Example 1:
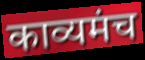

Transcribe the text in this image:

काव्यमंच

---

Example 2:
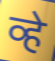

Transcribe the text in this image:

व्हे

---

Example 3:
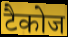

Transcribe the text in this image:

टैकोज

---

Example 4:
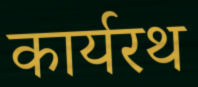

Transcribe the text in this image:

कार्यरथ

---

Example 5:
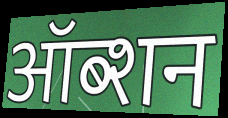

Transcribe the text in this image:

ऑब्शन